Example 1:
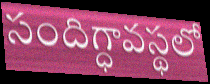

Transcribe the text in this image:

సందిగ్ధావస్థలో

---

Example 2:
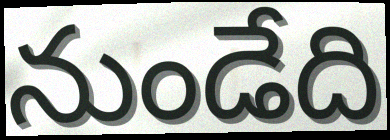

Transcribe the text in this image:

నుండేది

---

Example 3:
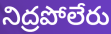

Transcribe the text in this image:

నిద్రపోలేరు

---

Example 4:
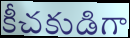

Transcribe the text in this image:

కీచకుడిగా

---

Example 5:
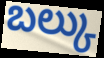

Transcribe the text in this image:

బల్కు